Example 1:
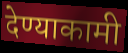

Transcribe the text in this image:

देण्याकामी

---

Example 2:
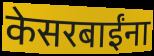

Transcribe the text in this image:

केसरबाईंना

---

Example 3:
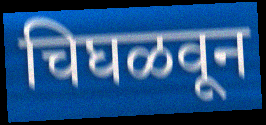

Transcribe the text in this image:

चिघळवून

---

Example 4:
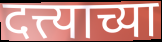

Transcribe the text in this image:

दत्त्याच्या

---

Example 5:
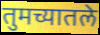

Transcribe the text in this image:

तुमच्यातले